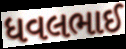
ધવલભાઈ